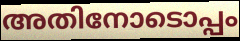
അതിനോടൊപ്പം